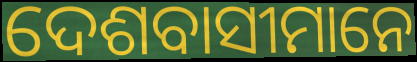
ଦେଶବାସୀମାନେ